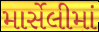
માર્સેલીમાં